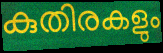
കുതിരകളും